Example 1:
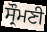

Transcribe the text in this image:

ਸ੍ਰੌਮਣੀ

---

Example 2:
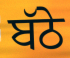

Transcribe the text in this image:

ਬੱਠੇ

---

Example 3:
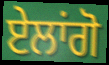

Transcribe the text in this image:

ਏਲਾਂਗੋ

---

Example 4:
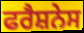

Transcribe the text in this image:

ਫਰੈਸ਼ਨੇਸ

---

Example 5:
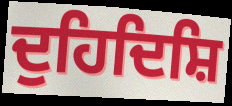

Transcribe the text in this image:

ਦੁਹਿਦਿਸ਼ਿ